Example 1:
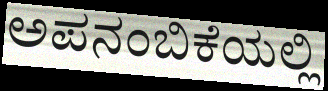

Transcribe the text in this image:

ಅಪನಂಬಿಕೆಯಲ್ಲಿ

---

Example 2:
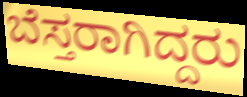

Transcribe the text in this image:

ಬೆಸ್ತರಾಗಿದ್ದರು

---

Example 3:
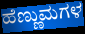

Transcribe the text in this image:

ಹೆಣ್ಣುಮಗಳ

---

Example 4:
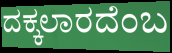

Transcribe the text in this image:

ದಕ್ಕಲಾರದೆಂಬ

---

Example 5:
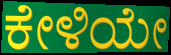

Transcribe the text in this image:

ಕೇಳಿಯೇ